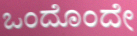
ಒಂದೊಂದೇ